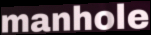
manhole